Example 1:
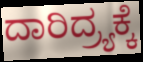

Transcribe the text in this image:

ದಾರಿದ್ರ್ಯಕ್ಕೆ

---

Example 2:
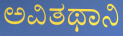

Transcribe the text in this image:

ಅವಿತಥಾನಿ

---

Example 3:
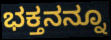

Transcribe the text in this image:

ಭಕ್ತನನ್ನೂ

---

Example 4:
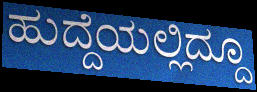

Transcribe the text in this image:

ಹುದ್ದೆಯಲ್ಲಿದ್ದೂ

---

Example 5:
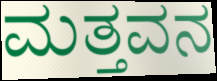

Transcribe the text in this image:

ಮತ್ತವನ